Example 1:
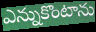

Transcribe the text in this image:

ఎన్నుకొంటాను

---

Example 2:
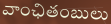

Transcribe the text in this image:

వాంఛితంబులు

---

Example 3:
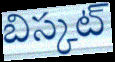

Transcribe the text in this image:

బిస్కట్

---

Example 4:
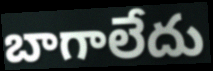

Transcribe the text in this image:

బాగాలేదు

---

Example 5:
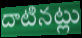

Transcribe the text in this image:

దాటినట్లు